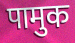
पामुक